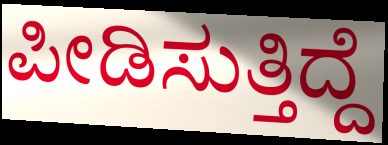
ಪೀಡಿಸುತ್ತಿದ್ದೆ